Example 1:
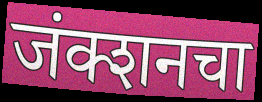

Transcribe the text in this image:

जंक्शनचा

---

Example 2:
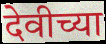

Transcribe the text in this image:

देवीच्या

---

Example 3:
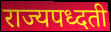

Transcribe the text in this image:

राज्यपध्दती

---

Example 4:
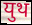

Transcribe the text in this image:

युथ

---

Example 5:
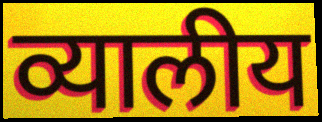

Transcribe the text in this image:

व्यालीय